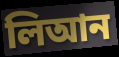
লিআন